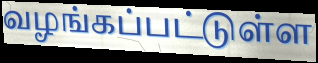
வழங்கப்பட்டுள்ள